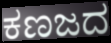
ಕಣಜದ